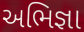
અભિજ્ઞા